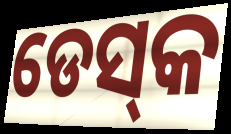
ଡେସ୍‌କ